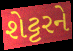
શેટ્ટરને